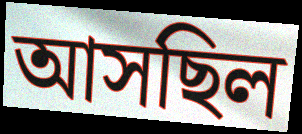
আসছিল